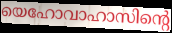
യെഹോവാഹാസിന്റെ